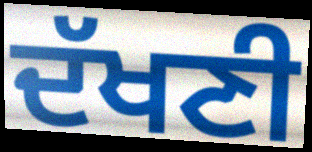
ਦੱਖਣੀ